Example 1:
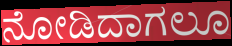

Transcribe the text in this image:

ನೋಡಿದಾಗಲೂ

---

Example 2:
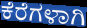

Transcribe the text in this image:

ಕೆರೆಗಳಾಗಿ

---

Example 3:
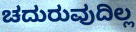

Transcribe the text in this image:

ಚದುರುವುದಿಲ್ಲ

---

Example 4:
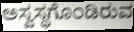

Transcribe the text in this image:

ಅಸ್ವಸ್ಥಗೊಂಡಿರುವ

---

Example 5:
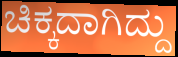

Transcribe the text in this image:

ಚಿಕ್ಕದಾಗಿದ್ದು